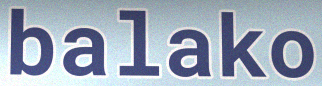
balako